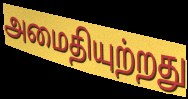
அமைதியுற்றது